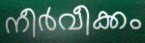
നീർവീക്കം